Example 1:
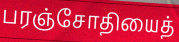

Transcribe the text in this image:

பரஞ்சோதியைத்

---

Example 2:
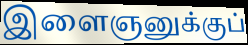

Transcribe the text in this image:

இளைஞனுக்குப்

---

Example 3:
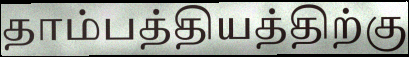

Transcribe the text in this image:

தாம்பத்தியத்திற்கு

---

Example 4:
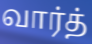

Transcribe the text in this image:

வார்த்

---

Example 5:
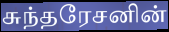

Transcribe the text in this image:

சுந்தரேசனின்